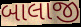
બાલાજી